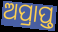
ଅପ୍ରାପ୍ତ